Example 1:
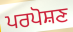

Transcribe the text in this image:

ਪਰਪੋਸ਼ਣ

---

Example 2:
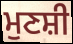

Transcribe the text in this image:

ਮੁਣਸ਼ੀ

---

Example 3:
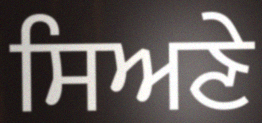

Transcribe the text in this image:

ਸਿਅਣੇ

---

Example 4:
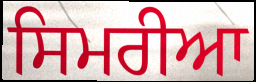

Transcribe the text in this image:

ਸਿਮਰੀਆ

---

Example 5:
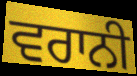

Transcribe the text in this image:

ਵਰਾਨੀ